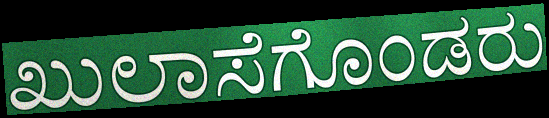
ಖುಲಾಸೆಗೊಂಡರು